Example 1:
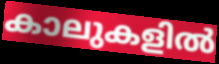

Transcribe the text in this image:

കാലുകളിൽ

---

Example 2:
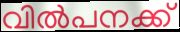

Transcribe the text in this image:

വിൽപനക്ക്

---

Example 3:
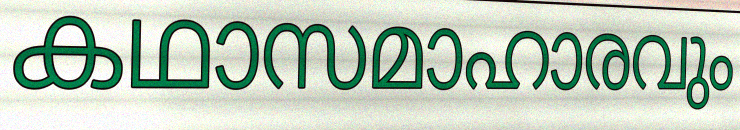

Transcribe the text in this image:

കഥാസമാഹാരവും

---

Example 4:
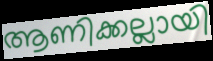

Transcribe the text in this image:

ആണിക്കല്ലായി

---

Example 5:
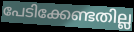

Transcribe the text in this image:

പേടിക്കേണ്ടതില്ല